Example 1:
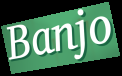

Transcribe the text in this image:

Banjo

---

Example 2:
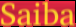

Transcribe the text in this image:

Saiba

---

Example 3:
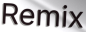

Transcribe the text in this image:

Remix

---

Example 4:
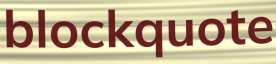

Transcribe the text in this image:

blockquote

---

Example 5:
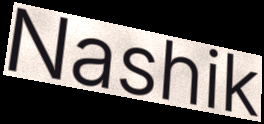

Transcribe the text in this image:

Nashik